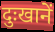
दुःखानें